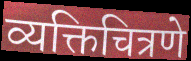
व्यक्तिचित्रणे